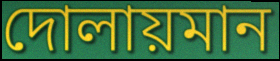
দোলায়মান